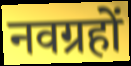
नवग्रहों